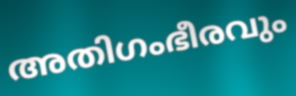
അതിഗംഭീരവും